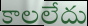
కాలలేదు